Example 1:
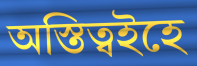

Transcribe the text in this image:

অস্তিত্বইহে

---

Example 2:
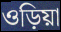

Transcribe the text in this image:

ওড়িয়া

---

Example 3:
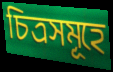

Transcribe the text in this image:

চিত্ৰসমূহে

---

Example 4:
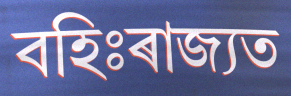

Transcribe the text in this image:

বহিঃৰাজ্যত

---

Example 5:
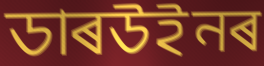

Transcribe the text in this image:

ডাৰউইনৰ